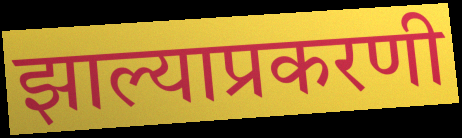
झाल्याप्रकरणी